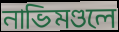
নাভিমণ্ডলে